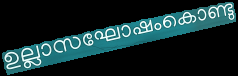
ഉല്ലാസഘോഷംകൊണ്ടു